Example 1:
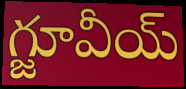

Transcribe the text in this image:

గ్జూవీయ్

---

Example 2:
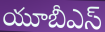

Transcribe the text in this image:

యూబీఎస్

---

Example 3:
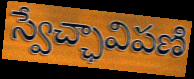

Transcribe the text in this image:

స్వేచ్ఛావిపణి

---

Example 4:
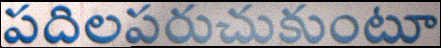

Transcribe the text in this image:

పదిలపరుచుకుంటూ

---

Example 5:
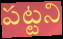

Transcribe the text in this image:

పట్టని